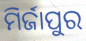
ମିର୍ଜାପୁର